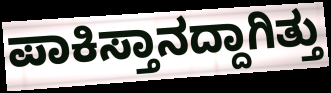
ಪಾಕಿಸ್ತಾನದ್ದಾಗಿತ್ತು